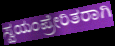
ಸ್ವಯಂಪ್ರೇರಿತರಾಗಿ